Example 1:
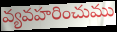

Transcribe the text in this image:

వ్యవహరించుము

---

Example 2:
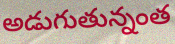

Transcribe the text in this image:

అడుగుతున్నంత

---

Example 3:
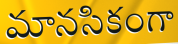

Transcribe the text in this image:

మానసికంగా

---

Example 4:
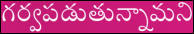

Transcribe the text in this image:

గర్వపడుతున్నామని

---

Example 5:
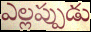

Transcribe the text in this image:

ఎల్లప్పుడు